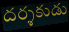
దర్శకుడు